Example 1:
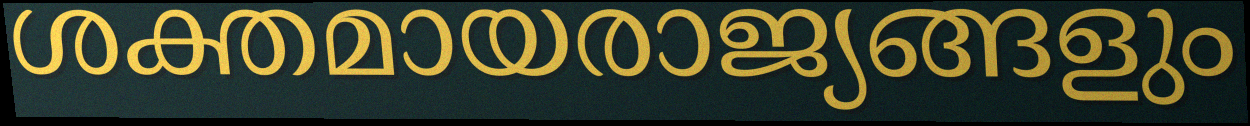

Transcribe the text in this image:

ശക്തമായരാജ്യങ്ങളും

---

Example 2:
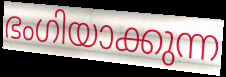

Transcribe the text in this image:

ഭംഗിയാക്കുന്ന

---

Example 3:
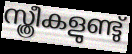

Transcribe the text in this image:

സ്ത്രീകളുണ്ടു്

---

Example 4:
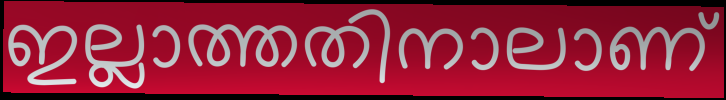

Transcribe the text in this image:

ഇല്ലാത്തതിനാലാണ്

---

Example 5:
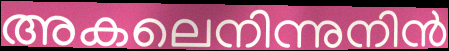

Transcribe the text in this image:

അകലെനിന്നുനിൻ